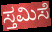
ಸ್ತಮಿಸೆ